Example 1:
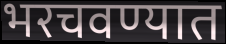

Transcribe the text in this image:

भरचवण्यात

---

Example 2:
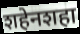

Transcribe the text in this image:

शहेनशहा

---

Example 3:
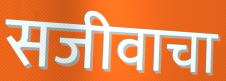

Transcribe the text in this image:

सजीवाचा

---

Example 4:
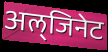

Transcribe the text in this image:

अल्जिनेट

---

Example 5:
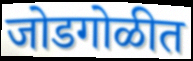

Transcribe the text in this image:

जोडगोळीत